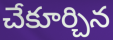
చేకూర్చిన